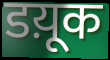
डय़ूक